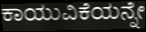
ಕಾಯುವಿಕೆಯನ್ನೇ